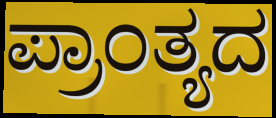
ಪ್ರಾಂತ್ಯದ